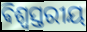
ଵିଶ୍ୱସ୍ତରୀୟ